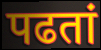
पढतां